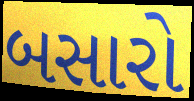
બસારો